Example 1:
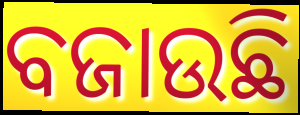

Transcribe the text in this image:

ବଜାଉଛି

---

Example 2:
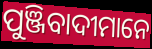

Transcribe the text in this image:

ପୁଞ୍ଜିବାଦୀମାନେ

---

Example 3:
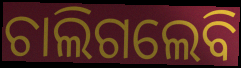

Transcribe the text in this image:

ଚାଲିଗଲେବି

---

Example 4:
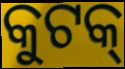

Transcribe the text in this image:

କୁଟକ୍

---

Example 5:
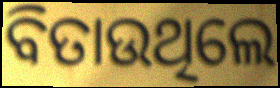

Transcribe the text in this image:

ବିତାଉଥିଲେ